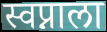
स्वप्नाला